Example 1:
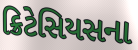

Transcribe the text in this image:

ક્રિટેસિયસના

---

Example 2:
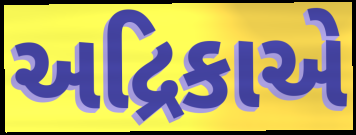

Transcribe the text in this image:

અદ્રિકાએ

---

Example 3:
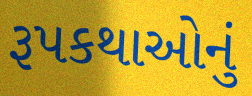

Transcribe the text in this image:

રૂપકથાઓનું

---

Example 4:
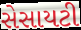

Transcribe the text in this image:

સેસાયટી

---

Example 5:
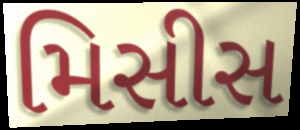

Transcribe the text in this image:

મિસીસ